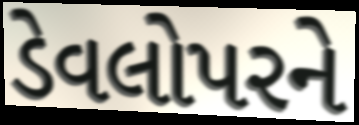
ડેવલોપરને